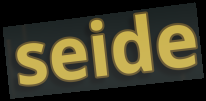
seide